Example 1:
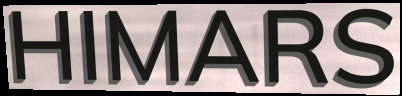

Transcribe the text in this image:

HIMARS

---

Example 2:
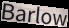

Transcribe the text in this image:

Barlow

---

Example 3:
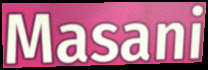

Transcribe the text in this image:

Masani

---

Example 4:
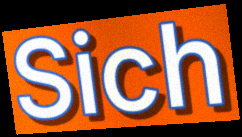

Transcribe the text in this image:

Sich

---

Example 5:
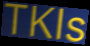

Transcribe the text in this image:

TKIs